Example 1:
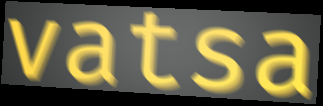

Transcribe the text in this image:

vatsa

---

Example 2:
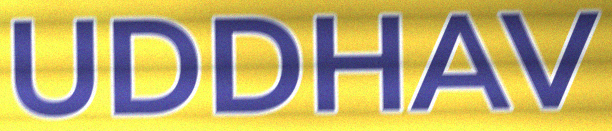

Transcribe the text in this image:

UDDHAV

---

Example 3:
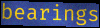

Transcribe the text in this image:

bearings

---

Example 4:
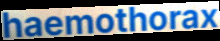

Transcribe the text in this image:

haemothorax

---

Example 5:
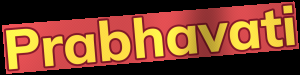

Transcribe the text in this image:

Prabhavati